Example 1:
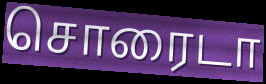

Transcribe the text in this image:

சொரைடா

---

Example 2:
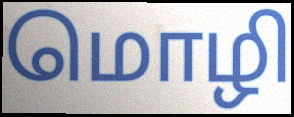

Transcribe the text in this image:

மொழி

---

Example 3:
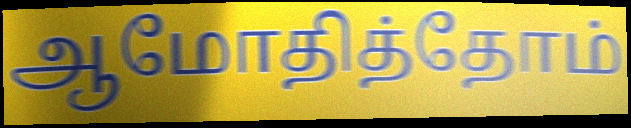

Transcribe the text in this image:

ஆமோதித்தோம்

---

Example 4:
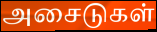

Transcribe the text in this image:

அசைடுகள்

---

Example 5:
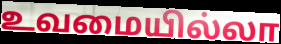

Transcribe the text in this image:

உவமையில்லா